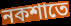
নকশাতে